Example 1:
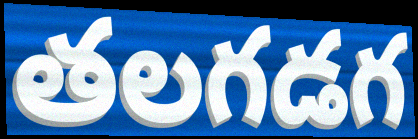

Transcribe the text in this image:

తలగడగ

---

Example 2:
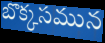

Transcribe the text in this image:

బొక్కసమున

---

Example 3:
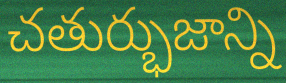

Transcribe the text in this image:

చతుర్భుజాన్ని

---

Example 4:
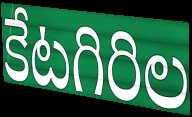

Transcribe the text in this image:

కేటగిరిల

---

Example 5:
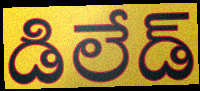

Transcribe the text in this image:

డిలేడ్